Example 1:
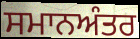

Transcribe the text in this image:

ਸਮਾਨਅੰਤਰ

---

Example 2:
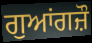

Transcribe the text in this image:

ਗੁਆਂਗਜ਼ੌ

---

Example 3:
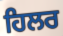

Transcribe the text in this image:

ਹਿਲਰ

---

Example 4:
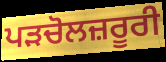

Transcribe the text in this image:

ਪੜਚੋਲਜ਼ਰੂਰੀ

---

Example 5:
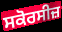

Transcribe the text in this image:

ਸਕੋਰਸੀਜ਼